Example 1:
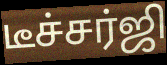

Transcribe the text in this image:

டீச்சர்ஜி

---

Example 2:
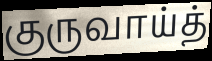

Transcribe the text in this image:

குருவாய்த்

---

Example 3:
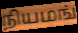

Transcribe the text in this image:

நியமங்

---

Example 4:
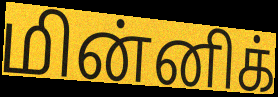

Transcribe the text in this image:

மின்னிக்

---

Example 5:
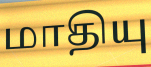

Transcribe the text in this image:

மாதியு